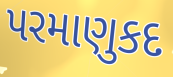
પરમાણુકદ